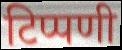
टिप्पणी